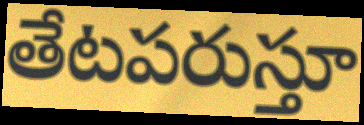
తేటపరుస్తూ